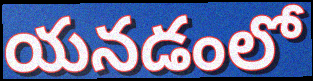
యనడంలో